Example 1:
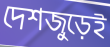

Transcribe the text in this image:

দেশজুড়েই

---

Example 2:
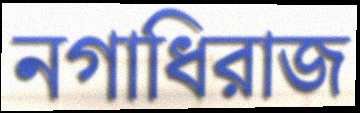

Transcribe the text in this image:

নগাধিরাজ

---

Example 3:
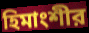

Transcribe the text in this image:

হিমাংশীর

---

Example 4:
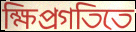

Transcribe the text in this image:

ক্ষিপ্রগতিতে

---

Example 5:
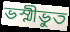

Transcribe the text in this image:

ভস্মীভুত